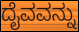
ದೈವವನ್ನು